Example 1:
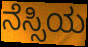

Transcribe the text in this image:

ನೆಸ್ಸಿಯ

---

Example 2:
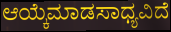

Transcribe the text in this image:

ಆಯ್ಕೆಮಾಡಸಾಧ್ಯವಿದೆ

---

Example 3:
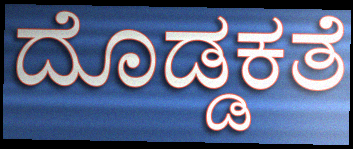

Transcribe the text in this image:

ದೊಡ್ಡಕತೆ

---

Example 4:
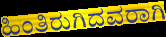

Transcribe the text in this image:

ಹಿಂತಿರುಗಿದವರಾಗಿ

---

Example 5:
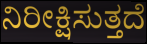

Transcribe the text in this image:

ನಿರೀಕ್ಷಿಸುತ್ತದೆ